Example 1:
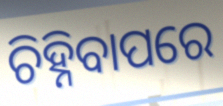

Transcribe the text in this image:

ଚିହ୍ନିବାପରେ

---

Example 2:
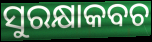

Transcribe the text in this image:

ସୁରକ୍ଷାକବଚ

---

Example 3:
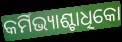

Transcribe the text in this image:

କର୍ମିଭ୍ୟାଶ୍ଚାଧିକୋ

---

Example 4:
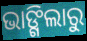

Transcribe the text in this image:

ଭାଙ୍ଗିଲାରୁ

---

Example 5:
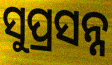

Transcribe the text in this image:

ସୁପ୍ରସନ୍ନ